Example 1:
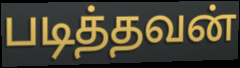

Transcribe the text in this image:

படித்தவன்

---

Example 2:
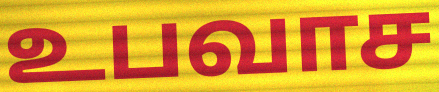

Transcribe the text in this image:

உபவாச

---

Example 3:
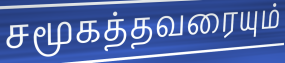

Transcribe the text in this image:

சமூகத்தவரையும்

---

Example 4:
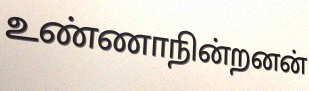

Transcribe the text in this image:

உண்ணாநின்றனன்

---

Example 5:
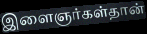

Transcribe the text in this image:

இளைஞர்கள்தான்